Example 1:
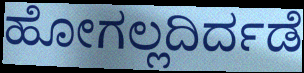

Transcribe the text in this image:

ಹೋಗಲ್ಲದಿರ್ದಡೆ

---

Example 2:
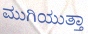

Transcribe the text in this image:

ಮುಗಿಯುತ್ತಾ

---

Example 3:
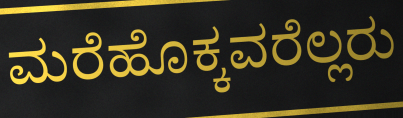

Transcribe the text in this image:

ಮರೆಹೊಕ್ಕವರೆಲ್ಲರು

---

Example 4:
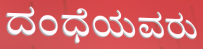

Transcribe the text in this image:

ದಂಧೆಯವರು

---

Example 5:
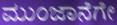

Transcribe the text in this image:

ಮುಂಜಾನೆಗೇ